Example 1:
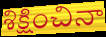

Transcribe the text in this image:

శిక్షించినా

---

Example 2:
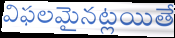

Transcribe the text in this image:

విఫలమైనట్లయితే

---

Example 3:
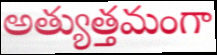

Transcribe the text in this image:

అత్యుత్తమంగా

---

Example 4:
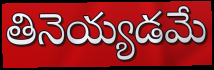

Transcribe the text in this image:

తినెయ్యడమే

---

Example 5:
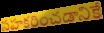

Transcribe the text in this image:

సహకరించడానికే